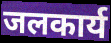
जलकार्य